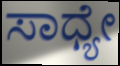
ಸಾಧ್ಯೇ